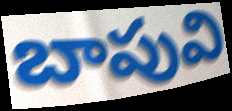
బాపువి